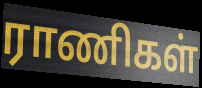
ராணிகள்